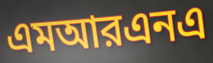
এমআরএনএ